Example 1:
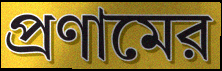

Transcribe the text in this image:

প্রণামের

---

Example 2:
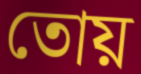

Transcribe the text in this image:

তোয়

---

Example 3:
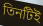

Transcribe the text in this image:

তিনটিই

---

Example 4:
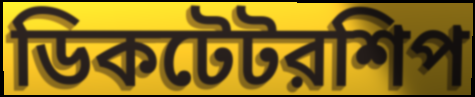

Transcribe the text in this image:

ডিকটেটরশিপ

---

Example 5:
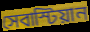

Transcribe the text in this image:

সেবাস্টিয়ান